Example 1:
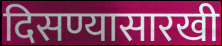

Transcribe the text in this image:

दिसण्यासारखी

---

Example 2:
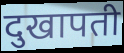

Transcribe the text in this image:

दुखापती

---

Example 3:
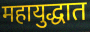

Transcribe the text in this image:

महायुद्धात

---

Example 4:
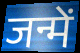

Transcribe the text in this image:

जन्में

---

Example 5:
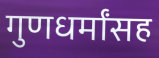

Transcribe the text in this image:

गुणधर्मांसह